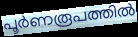
പൂർണരൂപത്തിൽ